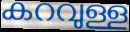
കറവുള്ള